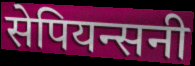
सेपियन्सनी